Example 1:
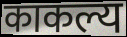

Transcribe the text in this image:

काकल्य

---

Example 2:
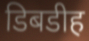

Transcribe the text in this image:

डिबडीह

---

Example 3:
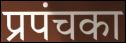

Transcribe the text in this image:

प्रपंचका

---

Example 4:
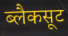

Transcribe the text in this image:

ब्लैकसूट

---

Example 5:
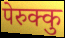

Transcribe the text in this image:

पेरुक्कु